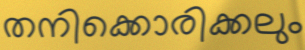
തനിക്കൊരിക്കലും